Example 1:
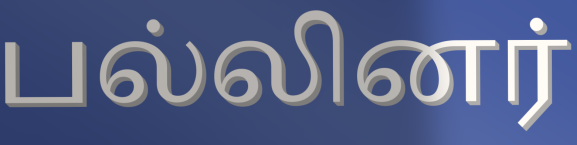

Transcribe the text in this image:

பல்லினர்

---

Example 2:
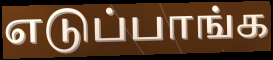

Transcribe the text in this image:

எடுப்பாங்க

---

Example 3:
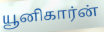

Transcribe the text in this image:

யூனிகார்ன்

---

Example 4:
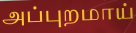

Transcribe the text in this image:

அப்புறமாய்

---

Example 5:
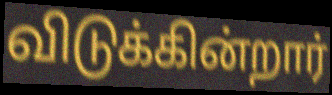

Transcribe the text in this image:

விடுக்கின்றார்